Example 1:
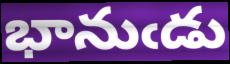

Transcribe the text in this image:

భానుఁడు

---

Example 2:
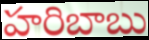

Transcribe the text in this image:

హరిబాబు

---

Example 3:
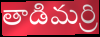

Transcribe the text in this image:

తాడిమర్రి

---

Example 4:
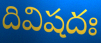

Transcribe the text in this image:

దివిషదః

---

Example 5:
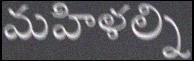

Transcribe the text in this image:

మహిళల్ని